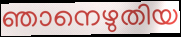
ഞാനെഴുതിയ